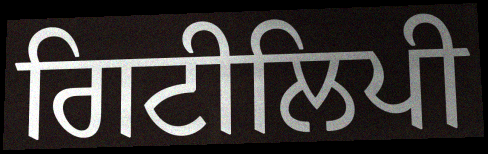
ਗਿਟੀਲਿਪੀ